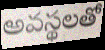
అవస్థలతో